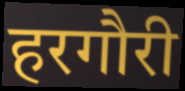
हरगौरी